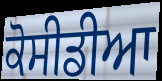
ਕੋਸੀਡੀਆ